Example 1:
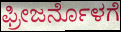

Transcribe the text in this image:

ಫ್ರೀಜರ್ನೊಳಗೆ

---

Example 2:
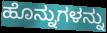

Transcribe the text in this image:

ಹೊನ್ನುಗಳನ್ನು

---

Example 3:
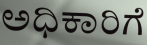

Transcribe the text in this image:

ಅಧಿಕಾರಿಗೆ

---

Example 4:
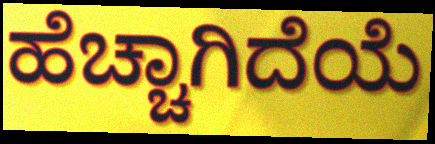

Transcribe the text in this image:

ಹೆಚ್ಚಾಗಿದೆಯೆ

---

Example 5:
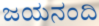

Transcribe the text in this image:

ಜಯನಂದಿ